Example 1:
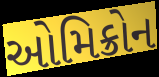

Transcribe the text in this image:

ઓમિક્રોન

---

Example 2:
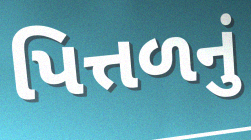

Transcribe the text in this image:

પિત્તળનું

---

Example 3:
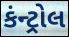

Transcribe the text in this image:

કંન્ટ્રોલ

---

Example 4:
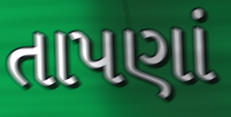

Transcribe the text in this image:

તાપણાં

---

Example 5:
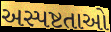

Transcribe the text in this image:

અસ્પષ્ટતાઓ